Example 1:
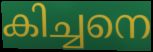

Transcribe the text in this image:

കിച്ചനെ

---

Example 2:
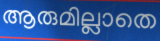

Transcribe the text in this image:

ആരുമില്ലാതെ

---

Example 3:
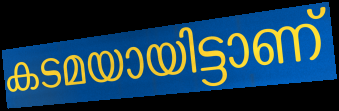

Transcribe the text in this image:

കടമയായിട്ടാണ്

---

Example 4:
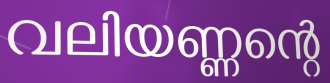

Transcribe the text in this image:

വലിയണ്ണന്റെ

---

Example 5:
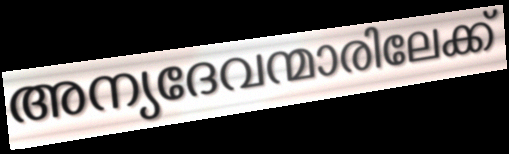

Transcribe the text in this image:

അന്യദേവന്മാരിലേക്ക്